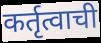
कर्तृत्वाची